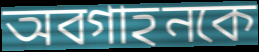
অবগাহনকে